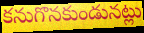
కనుగొనకుండునట్లు